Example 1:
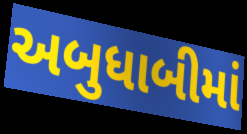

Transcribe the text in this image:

અબુધાબીમાં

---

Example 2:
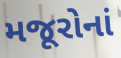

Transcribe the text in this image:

મજૂરોનાં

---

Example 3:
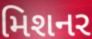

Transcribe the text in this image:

મિશનર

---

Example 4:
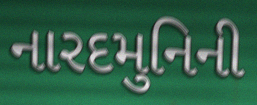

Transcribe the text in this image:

નારદમુનિની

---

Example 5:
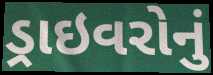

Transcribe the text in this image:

ડ્રાઇવરોનું